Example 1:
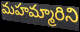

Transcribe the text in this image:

మహమ్మారిని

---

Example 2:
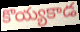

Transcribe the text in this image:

కొయ్యకాడ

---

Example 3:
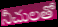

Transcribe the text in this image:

నీచులతో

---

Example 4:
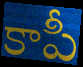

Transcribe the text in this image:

కాపీ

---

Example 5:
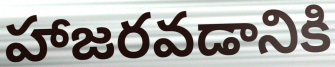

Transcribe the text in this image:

హాజరవడానికి